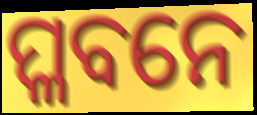
ପ୍ଳବନେ